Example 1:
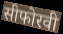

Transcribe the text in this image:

सीफोरवी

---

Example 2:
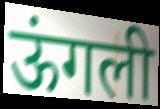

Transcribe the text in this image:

ऊंगली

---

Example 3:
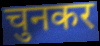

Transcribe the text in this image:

चुनकर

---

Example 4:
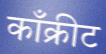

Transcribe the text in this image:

काँक्रीट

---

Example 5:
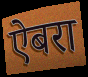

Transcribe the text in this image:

ऐबरा